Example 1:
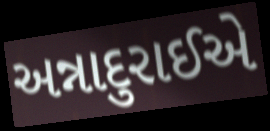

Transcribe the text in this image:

અન્નાદુરાઈએ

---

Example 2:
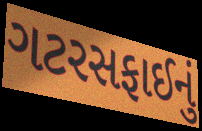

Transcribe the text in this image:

ગટરસફાઈનું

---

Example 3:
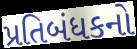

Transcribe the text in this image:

પ્રતિબંધકનો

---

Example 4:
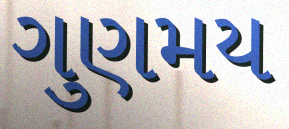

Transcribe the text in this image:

ગુણમય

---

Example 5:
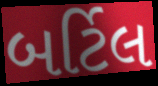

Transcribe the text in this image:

બર્ટિલ